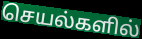
செயல்களில்